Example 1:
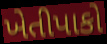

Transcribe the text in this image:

ખેતીપાકો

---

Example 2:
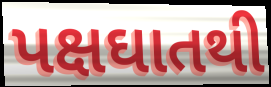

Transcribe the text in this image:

પક્ષઘાતથી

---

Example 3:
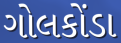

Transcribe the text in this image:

ગોલકોંડા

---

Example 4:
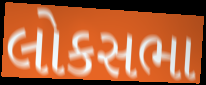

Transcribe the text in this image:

લોકસભા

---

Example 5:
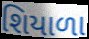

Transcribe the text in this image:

શિયાળા